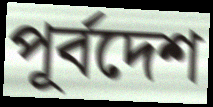
পূর্বদেশ